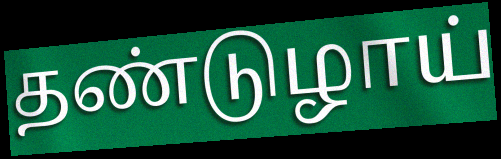
தண்டுழாய்